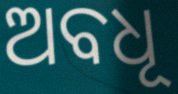
ଅବଧୂ